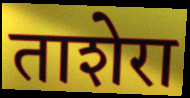
ताशेरा